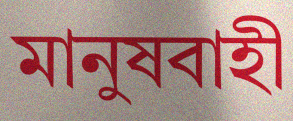
মানুষবাহী